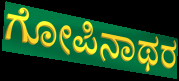
ಗೋಪಿನಾಥರ